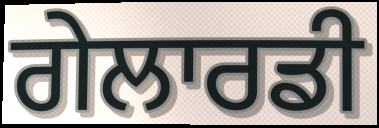
ਗੇਲਾਰਡੀ